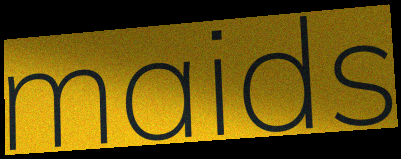
maids